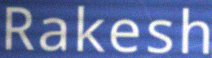
Rakesh